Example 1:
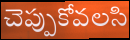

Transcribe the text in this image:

చెప్పుకోవలసి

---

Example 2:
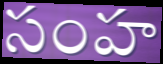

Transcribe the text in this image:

సంహ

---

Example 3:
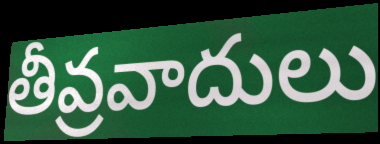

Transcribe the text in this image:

తీవ్రవాదులు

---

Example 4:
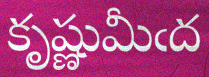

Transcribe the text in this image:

కృష్ణుమీఁద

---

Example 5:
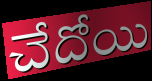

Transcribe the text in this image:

చేదోయి